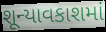
શૂન્યાવકાશમાં